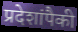
प्रदेशांपैकी